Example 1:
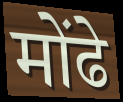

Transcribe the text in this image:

मोंढे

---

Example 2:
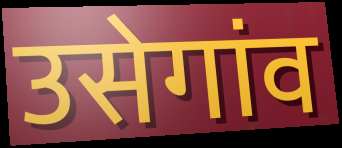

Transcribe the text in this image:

उसेगांव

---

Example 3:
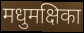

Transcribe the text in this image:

मधुमक्षिका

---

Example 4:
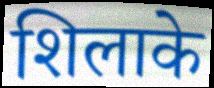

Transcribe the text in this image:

शिलाके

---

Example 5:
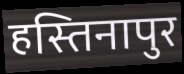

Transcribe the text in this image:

हस्तिनापुर